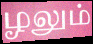
ழலும்